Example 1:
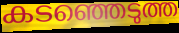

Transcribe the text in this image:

കടഞ്ഞെടുത്ത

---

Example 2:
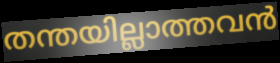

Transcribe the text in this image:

തന്തയില്ലാത്തവൻ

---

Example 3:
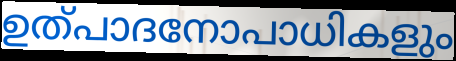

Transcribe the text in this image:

ഉത്പാദനോപാധികളും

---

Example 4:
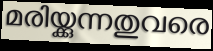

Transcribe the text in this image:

മരിയ്ക്കുന്നതുവരെ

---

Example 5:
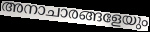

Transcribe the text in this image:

അനാചാരങ്ങളേയും